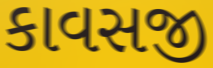
કાવસજી